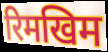
रिमखिम